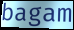
bagam